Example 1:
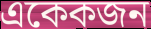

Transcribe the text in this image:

একেকজন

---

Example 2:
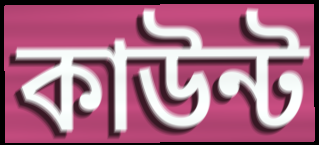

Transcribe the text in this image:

কাউন্ট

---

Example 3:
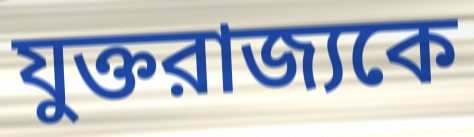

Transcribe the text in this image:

যুক্তরাজ্যকে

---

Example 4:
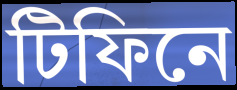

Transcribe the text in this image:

টিফিনে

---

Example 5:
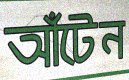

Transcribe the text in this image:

আঁটেন